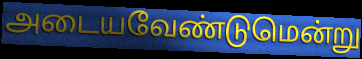
அடையவேண்டுமென்று